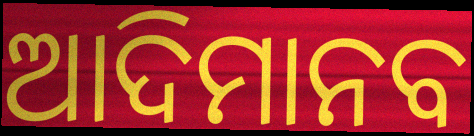
ଆଦିମାନବ